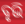
ବୃଭି